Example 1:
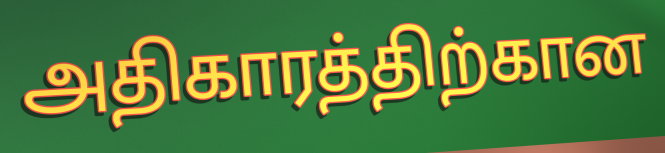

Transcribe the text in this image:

அதிகாரத்திற்கான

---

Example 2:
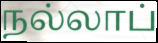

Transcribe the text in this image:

நல்லாப்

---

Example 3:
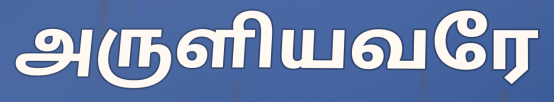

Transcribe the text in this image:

அருளியவரே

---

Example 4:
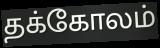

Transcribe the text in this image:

தக்கோலம்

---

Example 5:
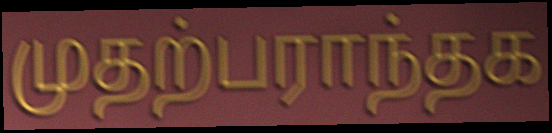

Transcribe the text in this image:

முதற்பராந்தக